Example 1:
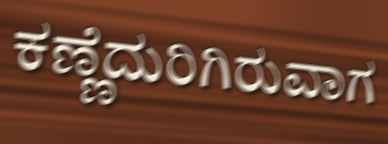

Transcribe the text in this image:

ಕಣ್ಣೆದುರಿಗಿರುವಾಗ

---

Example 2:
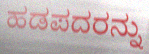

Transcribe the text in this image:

ಹಡಪದರನ್ನು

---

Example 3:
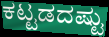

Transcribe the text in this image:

ಕಟ್ಟಡದಷ್ಟು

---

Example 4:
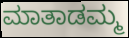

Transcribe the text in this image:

ಮಾತಾಡಮ್ಮ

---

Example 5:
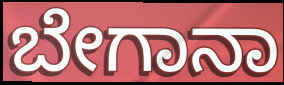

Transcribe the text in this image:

ಬೇಗಾನಾ